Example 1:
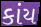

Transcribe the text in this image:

કાંય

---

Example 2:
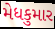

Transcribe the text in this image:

મેધકુમાર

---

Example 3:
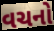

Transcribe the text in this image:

વચનો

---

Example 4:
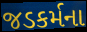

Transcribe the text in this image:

જડકર્મના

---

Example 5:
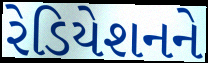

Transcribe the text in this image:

રેડિયેશનને